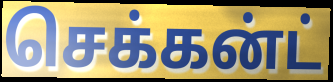
செக்கன்ட்